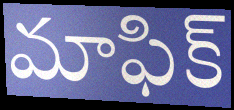
మాఫిక్